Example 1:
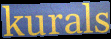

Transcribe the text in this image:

kurals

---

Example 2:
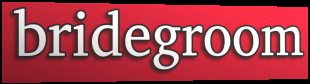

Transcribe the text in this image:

bridegroom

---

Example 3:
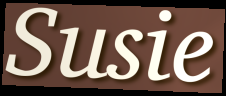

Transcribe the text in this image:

Susie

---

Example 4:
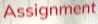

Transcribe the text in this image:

Assignment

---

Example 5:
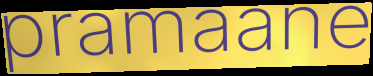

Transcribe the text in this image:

pramaane